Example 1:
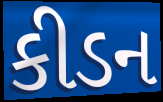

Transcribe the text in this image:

કીડન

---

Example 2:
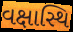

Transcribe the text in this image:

વક્ષાસ્થિ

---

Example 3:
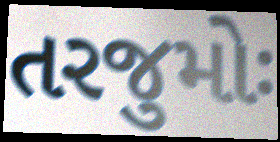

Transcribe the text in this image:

તરજુમોઃ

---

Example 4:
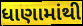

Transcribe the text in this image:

ધાણામાંથી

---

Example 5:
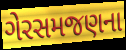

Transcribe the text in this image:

ગેરસમજણના